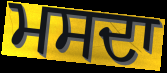
ਮਸਦਾ